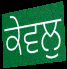
ਕੇਵਲੁ